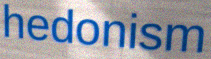
hedonism